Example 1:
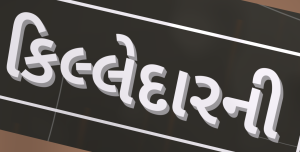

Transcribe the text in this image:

કિલ્લેદારની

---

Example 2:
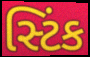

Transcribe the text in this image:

સ્ટિંક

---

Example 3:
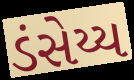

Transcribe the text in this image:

ડંસેય્ય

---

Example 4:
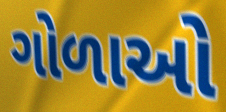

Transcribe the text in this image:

ગોળાઓ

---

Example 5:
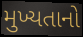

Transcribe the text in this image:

મુખ્યતાનો